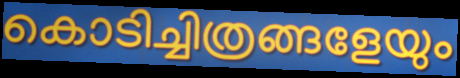
കൊടിച്ചിത്രങ്ങളേയും